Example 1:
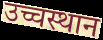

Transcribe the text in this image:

उच्चस्थान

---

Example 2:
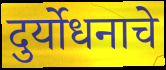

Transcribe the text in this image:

दुर्योधनाचे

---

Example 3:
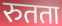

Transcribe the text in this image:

रुतता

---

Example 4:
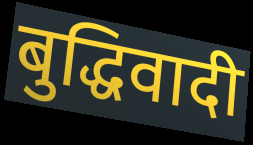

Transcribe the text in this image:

बुद्धिवादी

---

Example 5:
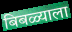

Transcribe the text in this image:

बिबळ्याला